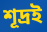
শূদ্ৰই